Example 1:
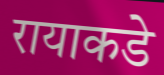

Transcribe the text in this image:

रायाकडे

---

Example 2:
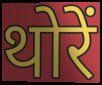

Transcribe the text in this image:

थोरें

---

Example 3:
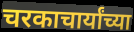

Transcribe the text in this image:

चरकाचार्यांच्या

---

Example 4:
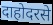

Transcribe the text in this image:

दाहोदरसे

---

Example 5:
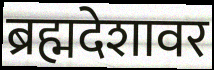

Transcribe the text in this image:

ब्रह्मदेशावर